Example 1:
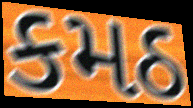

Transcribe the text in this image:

કમઠ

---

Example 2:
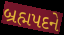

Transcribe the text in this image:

બ્રહ્મપદને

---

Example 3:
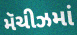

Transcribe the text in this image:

મૅચીઝમાં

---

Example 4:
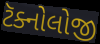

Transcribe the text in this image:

ટૅક્નોલોજી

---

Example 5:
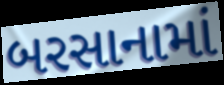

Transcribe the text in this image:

બરસાનામાં